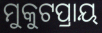
ମୁକୁଟପ୍ରାୟ